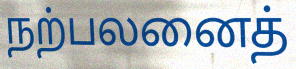
நற்பலனைத்